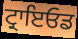
ਟ੍ਰਾਇਓਡ